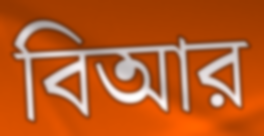
বিআর